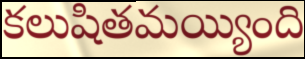
కలుషితమయ్యింది